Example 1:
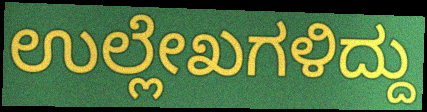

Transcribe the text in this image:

ಉಲ್ಲೇಖಗಳಿದ್ದು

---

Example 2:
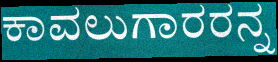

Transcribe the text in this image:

ಕಾವಲುಗಾರರನ್ನ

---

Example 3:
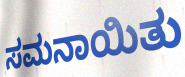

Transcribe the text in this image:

ಸಮನಾಯಿತು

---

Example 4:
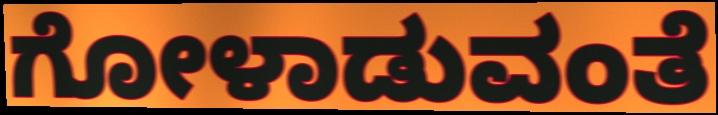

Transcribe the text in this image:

ಗೋಳಾಡುವಂತೆ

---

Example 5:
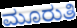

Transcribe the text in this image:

ಮೂರುತಿ